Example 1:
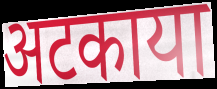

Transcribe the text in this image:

अटकाया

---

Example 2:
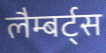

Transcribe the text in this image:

लैम्बर्ट्स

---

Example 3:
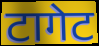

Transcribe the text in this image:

टागेट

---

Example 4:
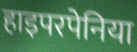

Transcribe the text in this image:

हाइपरपेनिया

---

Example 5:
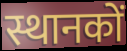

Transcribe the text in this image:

स्थानकों